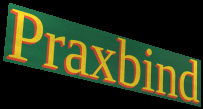
Praxbind